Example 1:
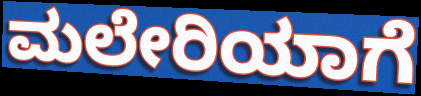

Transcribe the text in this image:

ಮಲೇರಿಯಾಗೆ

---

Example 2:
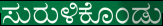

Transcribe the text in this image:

ಸುರುಳಿಕೊಂಡು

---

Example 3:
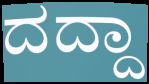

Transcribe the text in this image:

ದದ್ದಾ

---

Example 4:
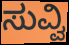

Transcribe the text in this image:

ಸುವ್ವಿ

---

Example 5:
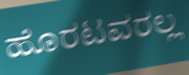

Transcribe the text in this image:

ಹೊರಟವರಲ್ಲ